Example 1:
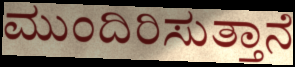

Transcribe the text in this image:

ಮುಂದಿರಿಸುತ್ತಾನೆ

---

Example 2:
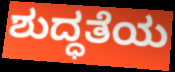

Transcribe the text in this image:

ಶುದ್ಧತೆಯ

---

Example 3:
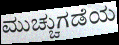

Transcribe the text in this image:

ಮುಚ್ಚುಗಡೆಯ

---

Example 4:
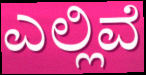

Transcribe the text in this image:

ಎಲ್ಲಿವೆ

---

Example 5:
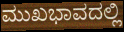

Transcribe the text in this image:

ಮುಖಭಾವದಲ್ಲಿ